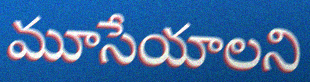
మూసేయాలని